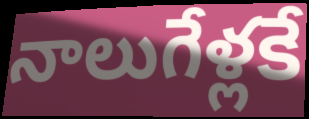
నాలుగేళ్లకే